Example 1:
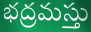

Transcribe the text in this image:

భద్రమస్తు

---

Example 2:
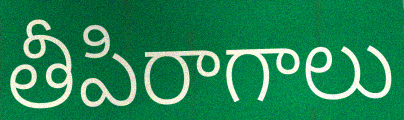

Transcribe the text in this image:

తీపిరాగాలు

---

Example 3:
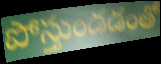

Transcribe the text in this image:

పోస్తుండడంతో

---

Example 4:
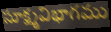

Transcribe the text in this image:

సూక్ష్మవిభాగము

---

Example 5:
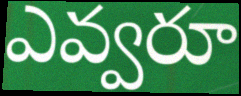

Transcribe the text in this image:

ఎవ్వరూ